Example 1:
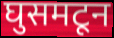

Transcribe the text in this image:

घुसमटून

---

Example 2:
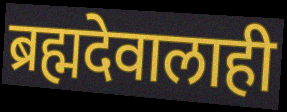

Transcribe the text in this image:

ब्रह्मदेवालाही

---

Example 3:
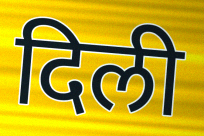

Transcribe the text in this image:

दिली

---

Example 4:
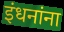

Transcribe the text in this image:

इंधनांना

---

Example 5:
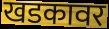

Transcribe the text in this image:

खडकावर